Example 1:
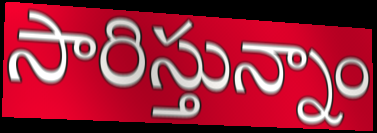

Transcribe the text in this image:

సారిస్తున్నాం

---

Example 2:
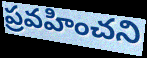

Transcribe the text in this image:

ప్రవహించని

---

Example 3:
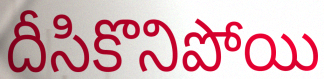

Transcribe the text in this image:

దీసికొనిపోయి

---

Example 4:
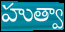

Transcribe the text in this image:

హుత్వా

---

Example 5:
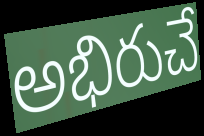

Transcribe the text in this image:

అభిరుచే